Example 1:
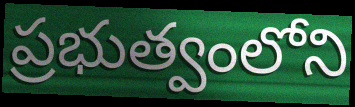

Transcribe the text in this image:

ప్రభుత్వంలోని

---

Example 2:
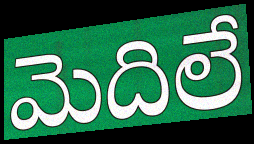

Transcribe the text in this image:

మెదిలే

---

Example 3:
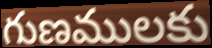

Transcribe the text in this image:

గుణములకు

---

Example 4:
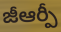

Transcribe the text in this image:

జీఆర్పీ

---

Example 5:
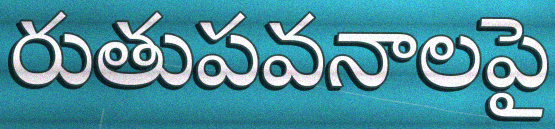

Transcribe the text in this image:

రుతుపవనాలపై